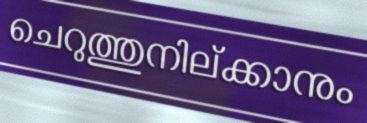
ചെറുത്തുനില്ക്കാനും